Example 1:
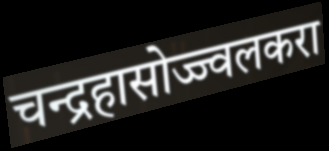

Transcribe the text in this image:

चन्द्रहासोज्ज्वलकरा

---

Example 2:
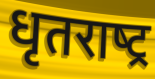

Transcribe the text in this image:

धृतराष्ट्र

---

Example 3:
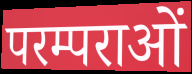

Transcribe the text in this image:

परम्पराओं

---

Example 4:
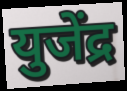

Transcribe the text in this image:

युजेंद्र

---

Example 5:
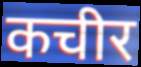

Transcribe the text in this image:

कचीर